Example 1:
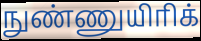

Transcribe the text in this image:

நுண்ணுயிரிக்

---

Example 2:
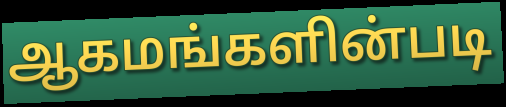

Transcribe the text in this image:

ஆகமங்களின்படி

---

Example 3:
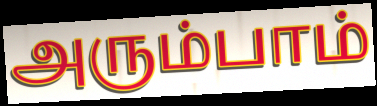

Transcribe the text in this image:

அரும்பாம்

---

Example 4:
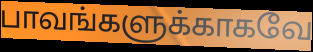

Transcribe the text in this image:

பாவங்களுக்காகவே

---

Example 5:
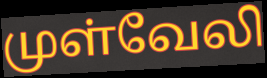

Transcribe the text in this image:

முள்வேலி